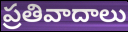
ప్రతివాదాలు